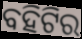
ବହିଟିର